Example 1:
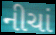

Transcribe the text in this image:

નીચાં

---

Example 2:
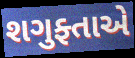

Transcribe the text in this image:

શગુફ્તાએ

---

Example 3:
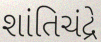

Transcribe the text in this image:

શાંતિચંદ્રે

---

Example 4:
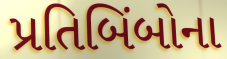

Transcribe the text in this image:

પ્રતિબિંબોના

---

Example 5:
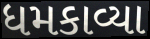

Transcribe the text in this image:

ધમકાવ્યા